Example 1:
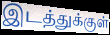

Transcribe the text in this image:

இடத்துக்குள்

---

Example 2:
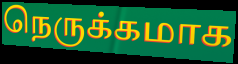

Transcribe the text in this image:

நெருக்கமாக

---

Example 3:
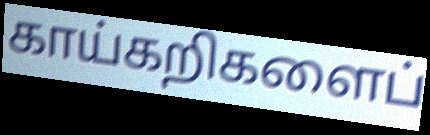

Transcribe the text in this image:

காய்கறிகளைப்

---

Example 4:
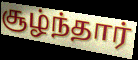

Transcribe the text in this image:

சூழ்ந்தார்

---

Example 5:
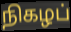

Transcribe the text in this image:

நிகழப்